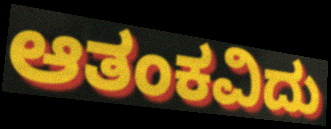
ಆತಂಕವಿದು